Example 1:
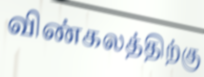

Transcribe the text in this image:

விண்கலத்திற்கு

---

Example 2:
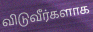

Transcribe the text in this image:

விடுவீர்களாக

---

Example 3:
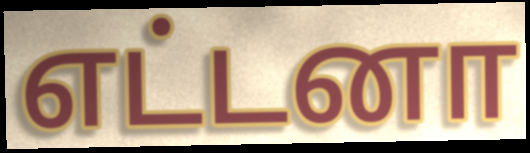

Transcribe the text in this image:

எட்டனா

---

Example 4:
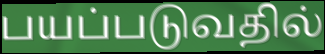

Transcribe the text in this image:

பயப்படுவதில்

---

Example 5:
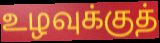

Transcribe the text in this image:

உழவுக்குத்